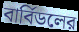
বার্বিডলের